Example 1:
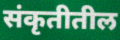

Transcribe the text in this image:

संकृतीतील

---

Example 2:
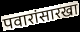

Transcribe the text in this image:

पवारांसारखा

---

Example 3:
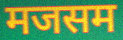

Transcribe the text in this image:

मजसम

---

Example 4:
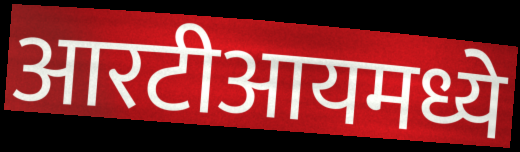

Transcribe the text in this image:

आरटीआयमध्ये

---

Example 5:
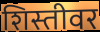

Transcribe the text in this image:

शिस्तीवर